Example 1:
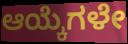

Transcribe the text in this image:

ಆಯ್ಕೆಗಳೇ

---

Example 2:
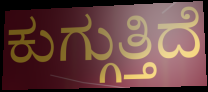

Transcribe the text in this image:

ಕುಗ್ಗುತ್ತಿದೆ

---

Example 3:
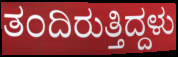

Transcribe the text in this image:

ತಂದಿರುತ್ತಿದ್ದಳು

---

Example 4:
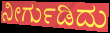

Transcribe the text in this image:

ನೀರ್ಗುಡಿದು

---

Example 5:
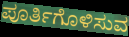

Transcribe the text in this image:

ಪೂರ್ತಿಗೊಳಿಸುವ